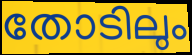
തോടിലും